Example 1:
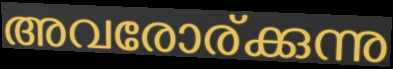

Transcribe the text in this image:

അവരോര്ക്കുന്നു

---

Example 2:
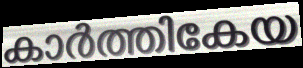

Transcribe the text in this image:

കാർത്തികേയ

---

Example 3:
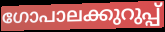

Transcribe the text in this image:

ഗോപാലക്കുറുപ്പ്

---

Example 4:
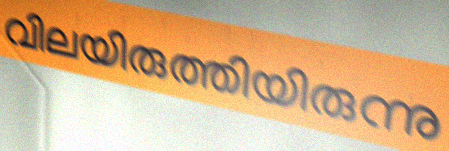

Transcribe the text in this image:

വിലയിരുത്തിയിരുന്നു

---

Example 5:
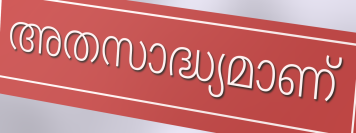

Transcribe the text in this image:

അതസാദ്ധ്യമാണ്